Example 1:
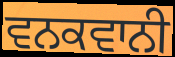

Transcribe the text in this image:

ਵਨਕਵਾਨੀ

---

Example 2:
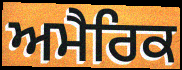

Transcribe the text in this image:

ਅਮੈਰਿਕ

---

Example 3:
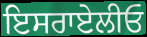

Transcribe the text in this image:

ਇਸਰਾਏਲੀਓ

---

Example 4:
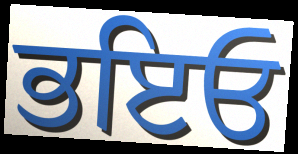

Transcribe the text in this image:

ਭਇਓ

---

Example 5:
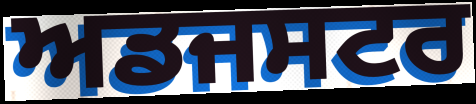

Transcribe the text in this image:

ਅਡਜਸਟਰ